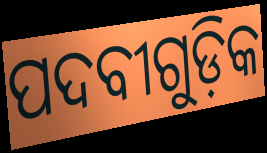
ପଦବୀଗୁଡ଼ିକ